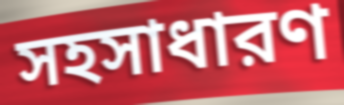
সহসাধারণ